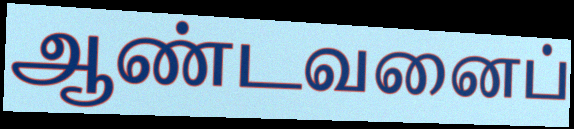
ஆண்டவனைப்